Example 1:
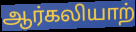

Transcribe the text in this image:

ஆர்கலியாற்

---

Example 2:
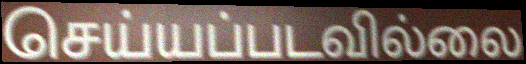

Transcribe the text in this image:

செய்யப்படவில்லை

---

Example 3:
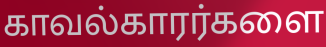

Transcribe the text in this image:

காவல்காரர்களை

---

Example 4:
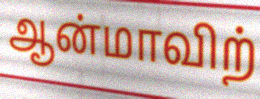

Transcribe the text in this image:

ஆன்மாவிற்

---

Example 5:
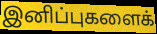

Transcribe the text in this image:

இனிப்புகளைக்